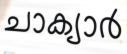
ചാക്യാർ